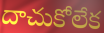
దాచుకోలేక